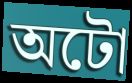
অটো